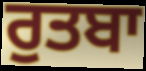
ਰੁਤਬਾ